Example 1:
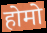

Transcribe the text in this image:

होमो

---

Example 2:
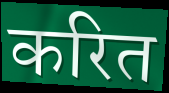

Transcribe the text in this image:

करित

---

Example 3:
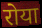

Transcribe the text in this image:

रोया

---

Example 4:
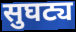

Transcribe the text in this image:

सुघट्य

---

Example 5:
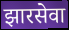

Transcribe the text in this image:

झारसेवा